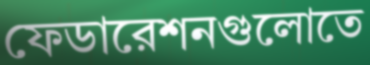
ফেডারেশনগুলোতে